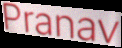
Pranav